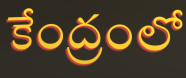
కేంద్రంలో